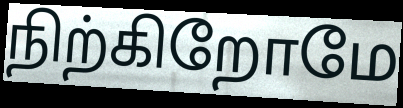
நிற்கிறோமே